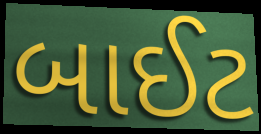
બાઈટ